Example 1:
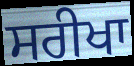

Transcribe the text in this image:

ਸਰੀਖਾ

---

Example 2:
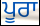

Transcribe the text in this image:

ਪੂਰਾ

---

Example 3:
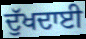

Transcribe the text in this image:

ਦੁੱਖਦਾਈ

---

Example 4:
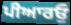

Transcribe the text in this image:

ਪੀਆਰਓੁ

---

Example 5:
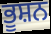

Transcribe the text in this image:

ਭੂਸ਼ਨ